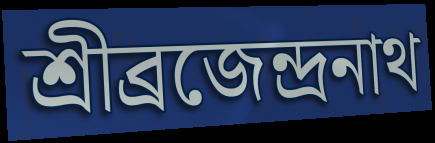
শ্রীব্রজেন্দ্রনাথ